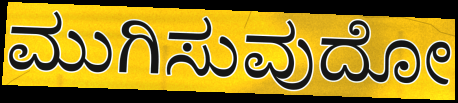
ಮುಗಿಸುವುದೋ